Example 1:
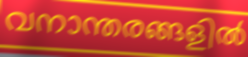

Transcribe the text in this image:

വനാന്തരങ്ങളിൽ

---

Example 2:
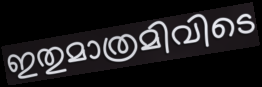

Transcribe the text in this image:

ഇതുമാത്രമിവിടെ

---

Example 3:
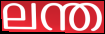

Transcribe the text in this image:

ലന്ത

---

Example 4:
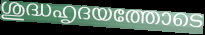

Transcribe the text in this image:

ശുദ്ധഹൃദയത്തോടെ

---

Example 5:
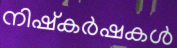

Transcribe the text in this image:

നിഷ്കർഷകൾ